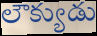
లౌక్యుడు